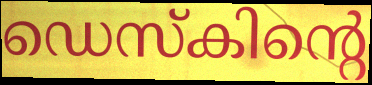
ഡെസ്കിന്റെ